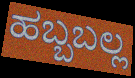
ಹಬ್ಬಬಲ್ಲ